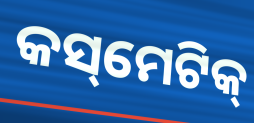
କସ୍‌ମେଟିକ୍